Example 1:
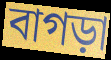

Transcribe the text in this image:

বাগড়া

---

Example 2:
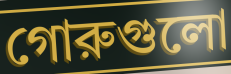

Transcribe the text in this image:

গোরুগুলো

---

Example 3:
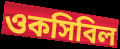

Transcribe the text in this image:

ওকসিবিল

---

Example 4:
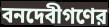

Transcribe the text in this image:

বনদেবীগণের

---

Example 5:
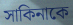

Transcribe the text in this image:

সাকিনাকে